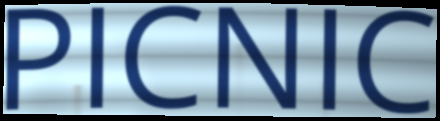
PICNIC